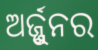
ଅର୍ଜ୍ଜୁନର